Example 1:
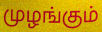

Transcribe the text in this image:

முழங்கும்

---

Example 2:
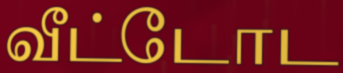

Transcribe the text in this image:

வீட்டோட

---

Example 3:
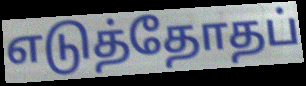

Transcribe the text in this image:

எடுத்தோதப்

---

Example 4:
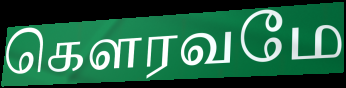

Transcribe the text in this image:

கௌரவமே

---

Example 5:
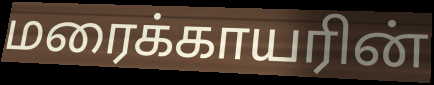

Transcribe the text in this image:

மரைக்காயரின்